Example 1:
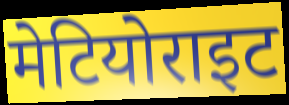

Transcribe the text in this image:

मेटियोराइट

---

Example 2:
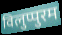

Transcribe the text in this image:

विलुप्पुरम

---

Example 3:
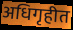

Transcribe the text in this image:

अधिगृहीत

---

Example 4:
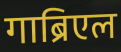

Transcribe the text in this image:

गाब्रिएल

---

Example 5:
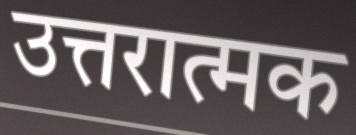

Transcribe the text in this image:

उत्तरात्मक